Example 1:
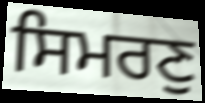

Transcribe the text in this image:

ਸਿਮਰਣੁ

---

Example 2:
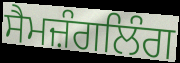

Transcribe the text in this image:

ਸੈਮਜ਼ੰਗਲਿੰਗ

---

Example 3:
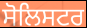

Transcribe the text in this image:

ਸੋਲਿਸਟਰ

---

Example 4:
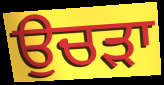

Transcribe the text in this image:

ਉਚੜਾ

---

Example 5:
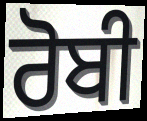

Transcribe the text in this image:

ਰੋਬੀ